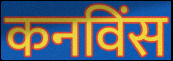
कनविंस